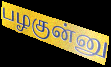
பழகுன்னு